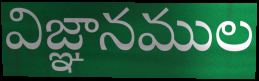
విజ్ఞానముల